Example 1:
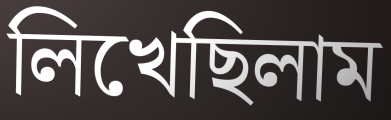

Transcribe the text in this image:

লিখেছিলাম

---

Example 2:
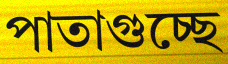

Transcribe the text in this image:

পাতাগুচ্ছে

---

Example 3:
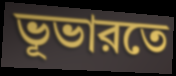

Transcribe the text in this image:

ভূভারতে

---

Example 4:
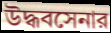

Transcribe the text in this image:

উদ্ধবসেনার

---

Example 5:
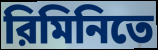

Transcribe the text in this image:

রিমিনিতে